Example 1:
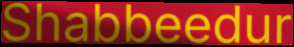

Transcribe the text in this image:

Shabbeedur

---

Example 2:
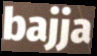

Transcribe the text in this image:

bajja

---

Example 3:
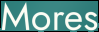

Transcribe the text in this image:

Mores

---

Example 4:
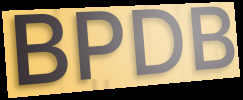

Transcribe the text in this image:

BPDB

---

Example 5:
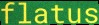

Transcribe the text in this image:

flatus